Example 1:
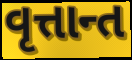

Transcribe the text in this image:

વૃત્તાન્ત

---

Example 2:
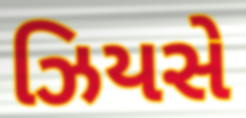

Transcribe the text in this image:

ઝિયસે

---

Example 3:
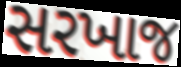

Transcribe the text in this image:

સરખાજ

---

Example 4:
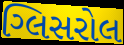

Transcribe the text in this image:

ગ્લિસરોલ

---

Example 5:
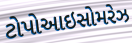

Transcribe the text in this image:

ટોપોઆઇસોમરેઝ